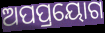
ଅପପ୍ରୟୋଗ